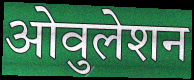
ओवुलेशन